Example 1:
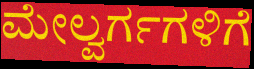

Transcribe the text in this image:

ಮೇಲ್ವರ್ಗಗಳಿಗೆ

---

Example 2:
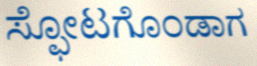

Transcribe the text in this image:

ಸ್ಫೋಟಗೊಂಡಾಗ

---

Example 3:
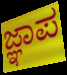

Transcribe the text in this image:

ಜ್ಞಾಪ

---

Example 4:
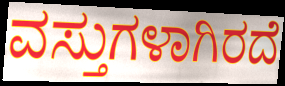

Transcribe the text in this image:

ವಸ್ತುಗಳಾಗಿರದೆ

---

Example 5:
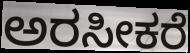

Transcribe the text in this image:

ಅರಸೀಕರೆ